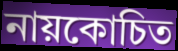
নায়কোচিত